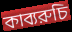
কাব্যরুচি